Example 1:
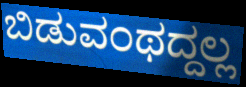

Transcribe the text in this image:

ಬಿಡುವಂಥದ್ದಲ್ಲ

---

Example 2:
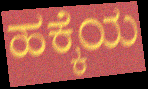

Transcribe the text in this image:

ಹಕ್ಕೆಯ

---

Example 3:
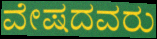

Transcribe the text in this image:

ವೇಷದವರು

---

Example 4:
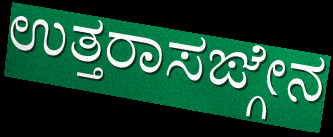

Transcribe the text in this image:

ಉತ್ತರಾಸಙ್ಗೇನ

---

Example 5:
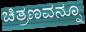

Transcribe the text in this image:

ಚಿತ್ರಣವನ್ನೂ